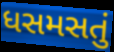
ધસમસતું